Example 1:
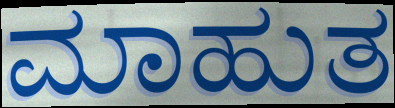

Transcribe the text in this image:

ಮಾಹುತ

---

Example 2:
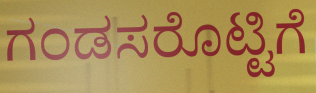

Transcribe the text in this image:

ಗಂಡಸರೊಟ್ಟಿಗೆ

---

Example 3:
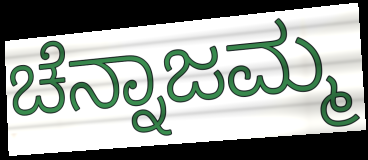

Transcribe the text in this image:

ಚೆನ್ನಾಜಮ್ಮ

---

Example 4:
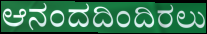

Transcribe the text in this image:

ಆನಂದದಿಂದಿರಲು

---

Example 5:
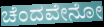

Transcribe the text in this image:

ಚೆಂದವೇನೋ